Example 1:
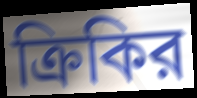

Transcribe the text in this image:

ক্রিকির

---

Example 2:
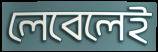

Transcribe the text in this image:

লেবেলেই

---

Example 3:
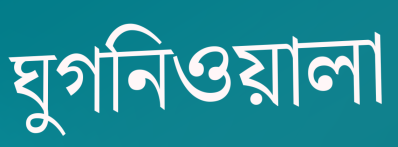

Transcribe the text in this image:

ঘুগনিওয়ালা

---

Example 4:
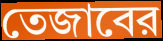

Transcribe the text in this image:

তেজাবের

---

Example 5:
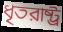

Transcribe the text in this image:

ধৃতরাষ্ট্র